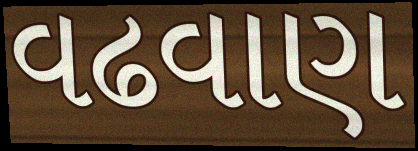
વઢવાણ